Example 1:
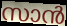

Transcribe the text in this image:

സാൻ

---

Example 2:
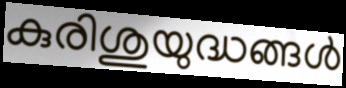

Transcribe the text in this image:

കുരിശുയുദ്ധങ്ങൾ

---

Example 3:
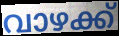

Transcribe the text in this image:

വാഴക്ക്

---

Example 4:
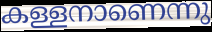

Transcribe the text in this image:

കള്ളനാണെന്നു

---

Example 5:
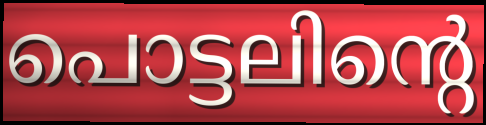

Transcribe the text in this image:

പൊട്ടലിന്റെ